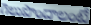
గెలుపొందాలంటే